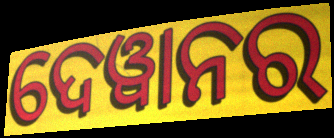
ଦେୱାନର